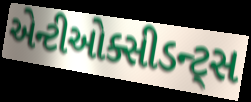
એન્ટીઓક્સીડન્ટ્સ